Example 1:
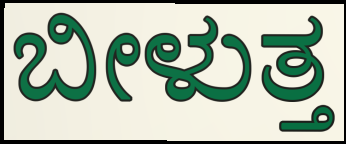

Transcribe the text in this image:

ಬೀಳುತ್ತ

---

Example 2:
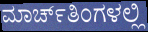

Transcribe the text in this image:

ಮಾರ್ಚ್‌ತಿಂಗಳಲ್ಲಿ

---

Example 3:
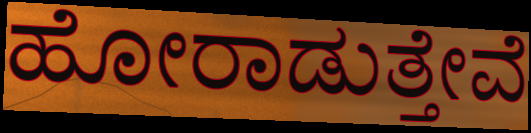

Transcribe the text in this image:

ಹೋರಾಡುತ್ತೇವೆ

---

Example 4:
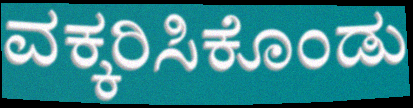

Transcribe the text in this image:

ವಕ್ಕರಿಸಿಕೊಂಡು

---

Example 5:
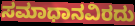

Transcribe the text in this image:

ಸಮಾಧಾನವಿರದು